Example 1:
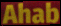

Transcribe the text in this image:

Ahab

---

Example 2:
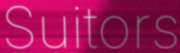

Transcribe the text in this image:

Suitors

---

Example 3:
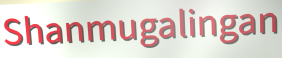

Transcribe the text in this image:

Shanmugalingan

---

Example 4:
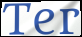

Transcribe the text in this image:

Ter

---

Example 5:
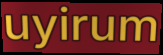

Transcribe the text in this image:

uyirum